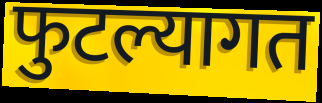
फुटल्यागत